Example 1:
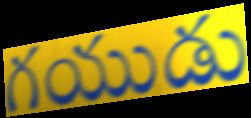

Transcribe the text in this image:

గయుడు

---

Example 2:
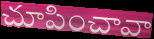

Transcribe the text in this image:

చూపించావా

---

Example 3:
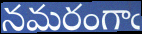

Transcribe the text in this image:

నమరంగాఁ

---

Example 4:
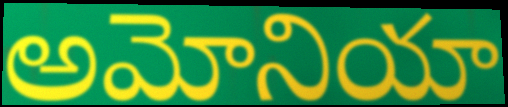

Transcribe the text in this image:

అమోనియా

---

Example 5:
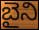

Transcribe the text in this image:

బైని